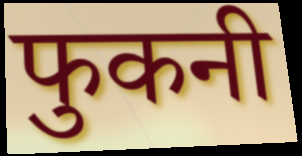
फुकनी